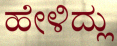
ಹೇಳಿದ್ಲು